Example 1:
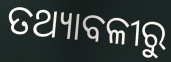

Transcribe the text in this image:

ତଥ୍ୟାବଳୀରୁ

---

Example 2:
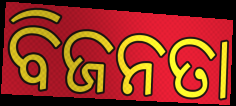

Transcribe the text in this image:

ବିଜନତା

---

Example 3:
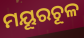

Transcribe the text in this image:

ମୟୂରଚୂଳ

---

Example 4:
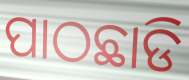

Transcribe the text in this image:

ପାଠଛାଡି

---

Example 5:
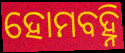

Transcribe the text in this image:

ହୋମବହ୍ନି